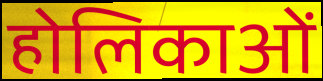
होलिकाओं